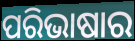
ପରିଭାଷାର